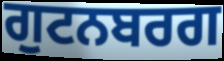
ਗੁਟਨਬਰਗ